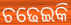
ଚଢେଇକି